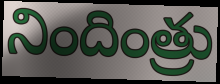
నిందింత్రు